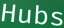
Hubs